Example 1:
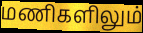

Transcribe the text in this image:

மணிகளிலும்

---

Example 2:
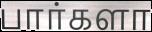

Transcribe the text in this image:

பார்களா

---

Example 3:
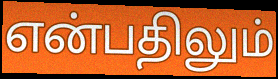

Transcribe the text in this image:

என்பதிலும்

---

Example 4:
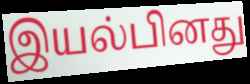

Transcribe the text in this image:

இயல்பினது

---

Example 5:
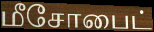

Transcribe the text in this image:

மீசோபைட்